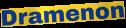
Dramenon